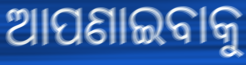
ଆପଣାଇବାକୁ